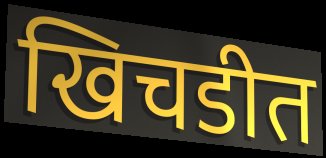
खिचडीत